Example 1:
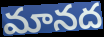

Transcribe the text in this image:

మానద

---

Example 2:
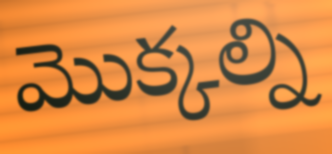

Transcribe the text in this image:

మొక్కల్ని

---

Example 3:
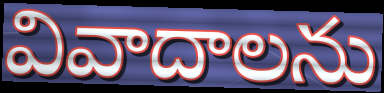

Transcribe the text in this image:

వివాదాలను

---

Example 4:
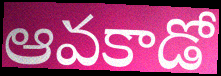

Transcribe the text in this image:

ఆవకాడో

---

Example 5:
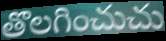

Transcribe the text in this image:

తొలగించుచు